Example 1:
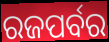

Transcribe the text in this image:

ରଜପର୍ବର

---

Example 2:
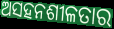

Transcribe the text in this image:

ଅସହନଶୀଳତାର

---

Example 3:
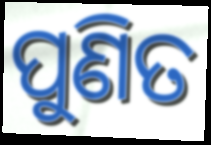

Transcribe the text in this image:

ପୁଣିତ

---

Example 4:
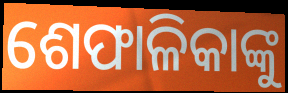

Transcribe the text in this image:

ଶେଫାଳିକାଙ୍କୁ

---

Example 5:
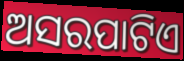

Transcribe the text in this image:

ଅସରପାଟିଏ